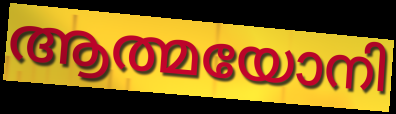
ആത്മയോനി